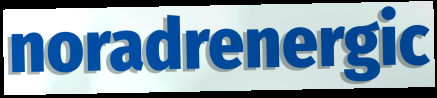
noradrenergic